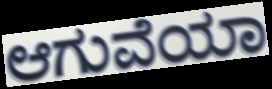
ಆಗುವೆಯಾ